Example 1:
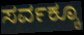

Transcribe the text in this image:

ಸರ್ವಕ್ಕೂ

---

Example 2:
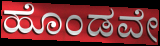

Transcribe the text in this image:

ಹೊಂಡವೇ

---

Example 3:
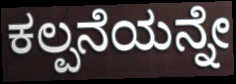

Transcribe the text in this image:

ಕಲ್ಪನೆಯನ್ನೇ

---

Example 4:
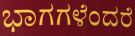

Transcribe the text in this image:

ಭಾಗಗಳೆಂದರೆ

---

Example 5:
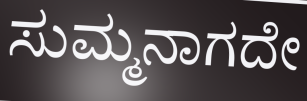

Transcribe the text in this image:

ಸುಮ್ಮನಾಗದೇ